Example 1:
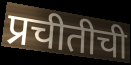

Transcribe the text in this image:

प्रचीतीची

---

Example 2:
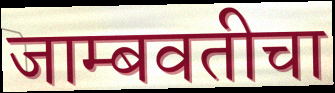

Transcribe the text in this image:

जाम्बवतीचा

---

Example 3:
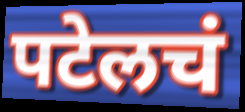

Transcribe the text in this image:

पटेलचं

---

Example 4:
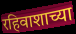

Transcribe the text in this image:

रहिवाशाच्या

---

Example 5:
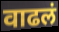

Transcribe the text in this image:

वाढलं